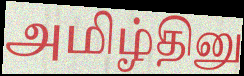
அமிழ்தினு